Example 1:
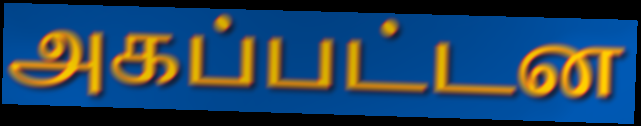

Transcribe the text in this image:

அகப்பட்டன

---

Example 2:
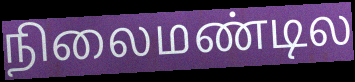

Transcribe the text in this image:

நிலைமண்டில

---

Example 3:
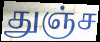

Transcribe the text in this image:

துஞ்ச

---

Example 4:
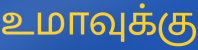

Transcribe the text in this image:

உமாவுக்கு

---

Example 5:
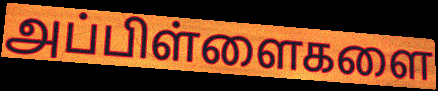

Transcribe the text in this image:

அப்பிள்ளைகளை